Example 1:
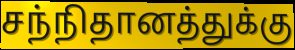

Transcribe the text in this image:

சந்நிதானத்துக்கு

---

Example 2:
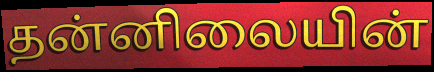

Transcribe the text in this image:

தன்னிலையின்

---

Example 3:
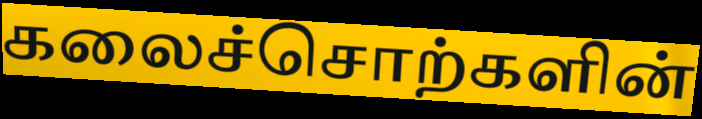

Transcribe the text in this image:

கலைச்சொற்களின்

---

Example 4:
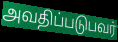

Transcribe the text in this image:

அவதிப்படுபவர்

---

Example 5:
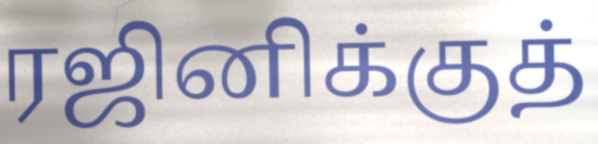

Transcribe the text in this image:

ரஜினிக்குத்